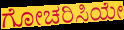
ಗೋಚರಿಸಿಯೇ